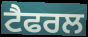
ਟੈਫਰਲ